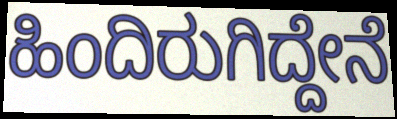
ಹಿಂದಿರುಗಿದ್ದೇನೆ